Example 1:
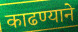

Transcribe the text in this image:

काढण्याने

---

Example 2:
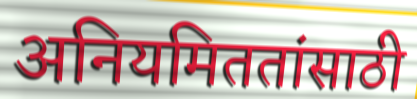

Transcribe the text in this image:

अनियमिततांसाठी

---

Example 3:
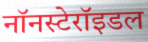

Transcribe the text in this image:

नॉनस्टेरॉइडल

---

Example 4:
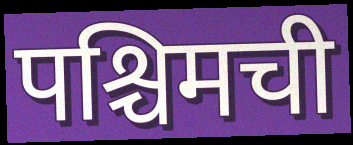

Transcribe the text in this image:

पश्चिमची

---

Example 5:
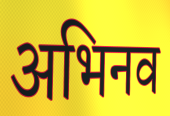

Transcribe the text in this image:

अभिनव